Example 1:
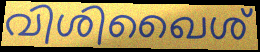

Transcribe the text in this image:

വിശിഖൈശ്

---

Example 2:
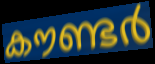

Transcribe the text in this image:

കൗണ്ടർ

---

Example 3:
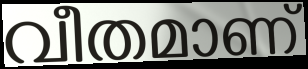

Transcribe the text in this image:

വീതമാണ്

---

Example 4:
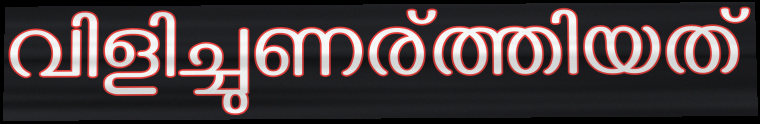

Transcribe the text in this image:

വിളിച്ചുണര്ത്തിയത്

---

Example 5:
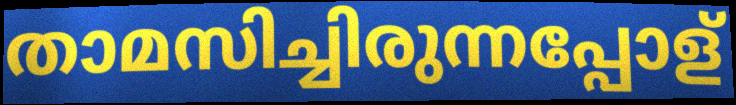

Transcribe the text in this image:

താമസിച്ചിരുന്നപ്പോള്